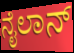
ನೈಲಾನ್